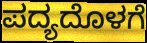
ಪದ್ಯದೊಳಗೆ